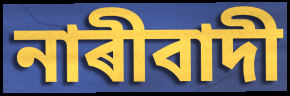
নাৰীবাদী